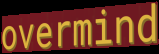
overmind